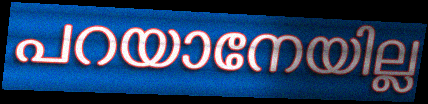
പറയാനേയില്ല